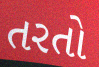
તરતો